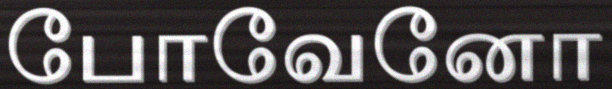
போவேனோ